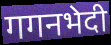
गगनभेदी